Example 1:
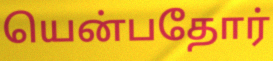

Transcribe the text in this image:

யென்பதோர்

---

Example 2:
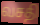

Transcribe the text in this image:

வசதி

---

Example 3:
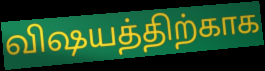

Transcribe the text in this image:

விஷயத்திற்காக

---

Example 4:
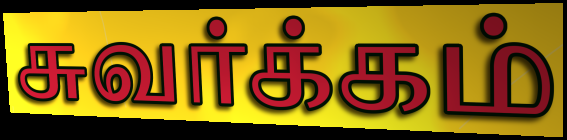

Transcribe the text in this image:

சுவர்க்கம்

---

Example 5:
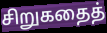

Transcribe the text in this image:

சிறுகதைத்